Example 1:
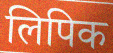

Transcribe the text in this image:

लिपिक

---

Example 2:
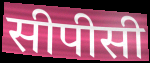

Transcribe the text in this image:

सीपीसी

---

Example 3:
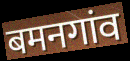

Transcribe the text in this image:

बमनगांव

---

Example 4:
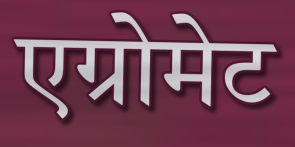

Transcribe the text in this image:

एग्रोमेट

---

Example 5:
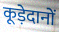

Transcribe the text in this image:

कूड़ेदानों